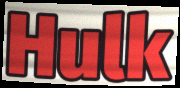
Hulk